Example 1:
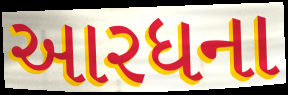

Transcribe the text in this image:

આરધના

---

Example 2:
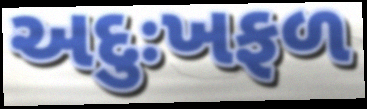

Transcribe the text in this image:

અદુઃખફળ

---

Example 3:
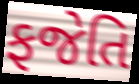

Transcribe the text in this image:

ફજેતિ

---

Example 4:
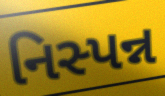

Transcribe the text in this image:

નિસ્પન્ન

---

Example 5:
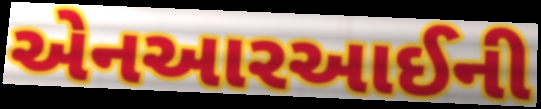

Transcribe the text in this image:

એનઆરઆઈની